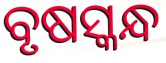
ବୃଷସ୍କନ୍ଧ